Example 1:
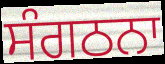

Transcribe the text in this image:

ਸੰਗਠਨਾ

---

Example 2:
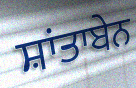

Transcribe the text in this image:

ਸ਼ਾਂਤਾਬੇਨ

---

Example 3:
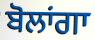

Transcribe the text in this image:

ਬੋਲਾਂਗਾ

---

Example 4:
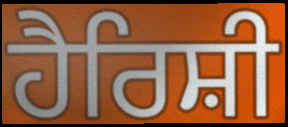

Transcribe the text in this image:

ਹੈਰਿਸ਼ੀ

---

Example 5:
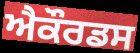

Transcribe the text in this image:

ਐਕੌਰਡਸ